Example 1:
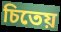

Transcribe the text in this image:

চিতেয়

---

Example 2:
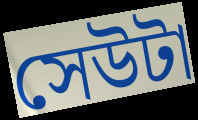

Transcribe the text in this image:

সেউটা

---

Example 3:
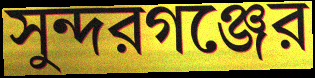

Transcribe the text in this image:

সুন্দরগঞ্জের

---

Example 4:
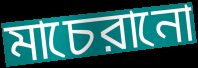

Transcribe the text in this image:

মাচেরানো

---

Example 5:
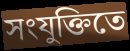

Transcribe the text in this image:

সংযুক্তিতে